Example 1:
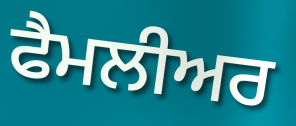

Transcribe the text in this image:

ਫੈਮਲੀਅਰ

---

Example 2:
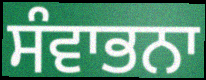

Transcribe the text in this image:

ਸੰਵਾਭਨਾ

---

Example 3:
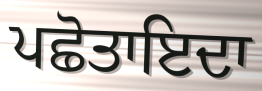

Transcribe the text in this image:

ਪਛੋਤਾਇਦਾ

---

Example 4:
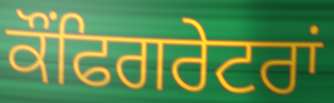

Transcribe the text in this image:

ਕੌਂਫਿਗਰੇਟਰਾਂ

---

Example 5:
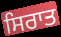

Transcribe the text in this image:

ਸਿਰਾਤ